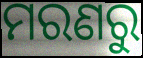
ମରଣରୁ